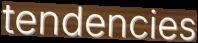
tendencies